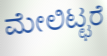
ಮೇಲಿಟ್ಟರೆ